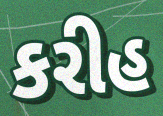
કરીહ